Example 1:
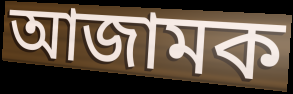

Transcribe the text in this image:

আজামক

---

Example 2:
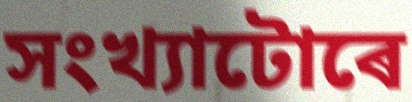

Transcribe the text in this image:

সংখ্যাটোৰে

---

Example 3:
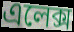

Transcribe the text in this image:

এলেক্স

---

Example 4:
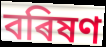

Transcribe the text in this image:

বৰিষণ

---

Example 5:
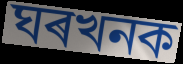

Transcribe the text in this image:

ঘৰখনক